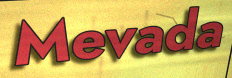
Mevada